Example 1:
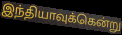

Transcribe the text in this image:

இந்தியாவுக்கென்று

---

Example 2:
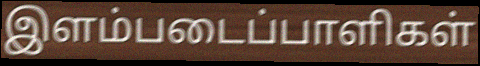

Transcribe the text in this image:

இளம்படைப்பாளிகள்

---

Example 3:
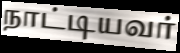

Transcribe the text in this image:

நாட்டியவர்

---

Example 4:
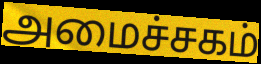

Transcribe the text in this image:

அமைச்சகம்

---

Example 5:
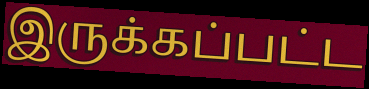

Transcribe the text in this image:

இருக்கப்பட்ட